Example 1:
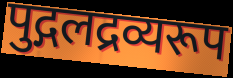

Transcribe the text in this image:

पुद्गलद्रव्यरूप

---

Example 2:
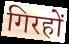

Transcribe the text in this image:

गिरहों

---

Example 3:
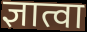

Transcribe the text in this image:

ज्ञात्वा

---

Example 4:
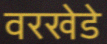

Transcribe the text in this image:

वरखेडे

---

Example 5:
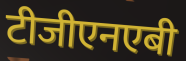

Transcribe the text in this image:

टीजीएनएबी